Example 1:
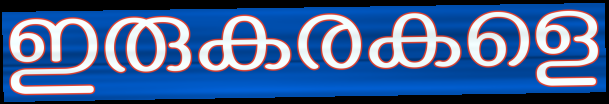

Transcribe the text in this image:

ഇരുകരകളെ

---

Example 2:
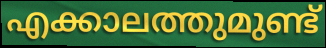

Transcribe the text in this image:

എക്കാലത്തുമുണ്ട്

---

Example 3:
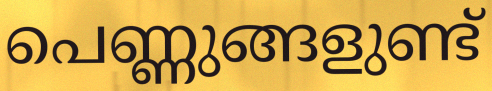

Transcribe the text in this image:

പെണ്ണുങ്ങളുണ്ട്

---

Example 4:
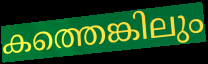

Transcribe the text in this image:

കത്തെങ്കിലും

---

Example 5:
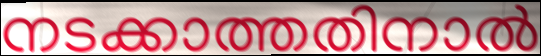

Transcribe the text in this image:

നടക്കാത്തതിനാൽ